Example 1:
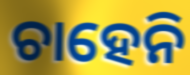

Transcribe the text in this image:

ଚାହେନି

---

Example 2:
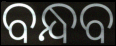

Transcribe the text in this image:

ବନ୍ଧବ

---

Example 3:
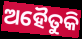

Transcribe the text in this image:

ଅହୈତୁକି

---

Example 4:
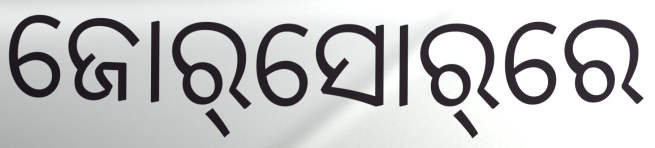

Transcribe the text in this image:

ଜୋର୍‌ସୋର୍‌ରେ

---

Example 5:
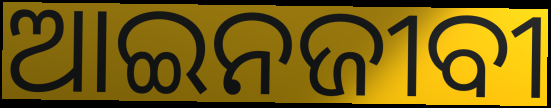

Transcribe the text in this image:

ଆଇନଜୀବୀ